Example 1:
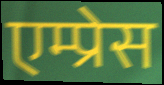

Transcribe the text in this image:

एम्प्रेस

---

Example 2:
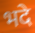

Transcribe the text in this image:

भदे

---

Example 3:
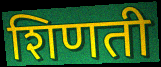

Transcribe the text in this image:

शिणती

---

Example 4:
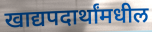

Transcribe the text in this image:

खाद्यपदार्थांमधील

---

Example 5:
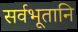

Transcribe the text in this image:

सर्वभूतानि